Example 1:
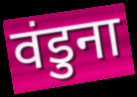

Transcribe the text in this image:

वंडुना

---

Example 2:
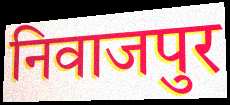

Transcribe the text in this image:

निवाजपुर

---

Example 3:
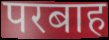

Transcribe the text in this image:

परबाह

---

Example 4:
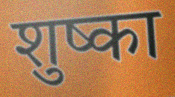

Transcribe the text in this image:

शुष्का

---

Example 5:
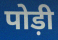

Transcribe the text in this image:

पोड़ी